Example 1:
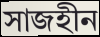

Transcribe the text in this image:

সাজহীন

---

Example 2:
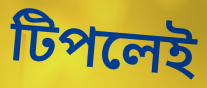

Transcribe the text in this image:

টিপলেই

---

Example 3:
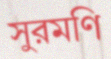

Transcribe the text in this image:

সুরমণি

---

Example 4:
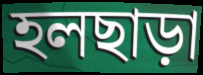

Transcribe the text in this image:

হলছাড়া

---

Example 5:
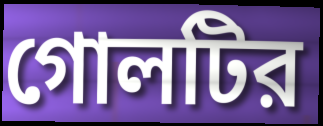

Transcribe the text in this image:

গোলটির